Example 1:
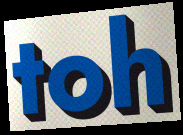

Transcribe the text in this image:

toh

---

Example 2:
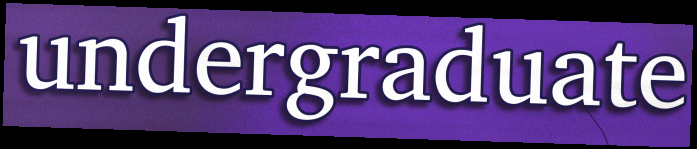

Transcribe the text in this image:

undergraduate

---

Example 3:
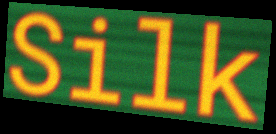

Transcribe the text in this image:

Silk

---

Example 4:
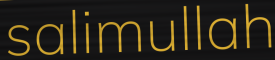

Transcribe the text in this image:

salimullah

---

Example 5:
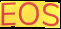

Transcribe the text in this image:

EOS